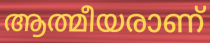
ആത്മീയരാണ്